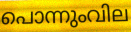
പൊന്നുംവില